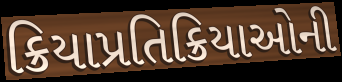
ક્રિયાપ્રતિક્રિયાઓની